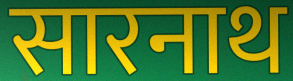
सारनाथ